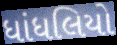
ધાંધલિયો